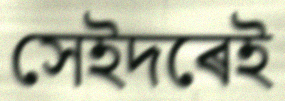
সেইদৰেই